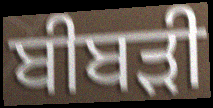
ਬੀਬੜੀ